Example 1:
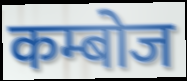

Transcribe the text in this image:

कम्बोज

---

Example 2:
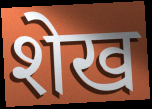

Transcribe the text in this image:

शेख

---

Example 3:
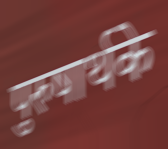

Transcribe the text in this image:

पुरुषार्थके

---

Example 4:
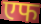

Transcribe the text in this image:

एफ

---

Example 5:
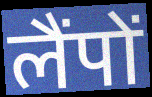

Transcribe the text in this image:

लैंपों